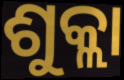
ଶୁକ୍ଲା